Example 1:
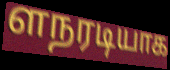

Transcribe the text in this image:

ளநரடியாக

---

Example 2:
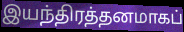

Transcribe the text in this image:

இயந்திரத்தனமாகப்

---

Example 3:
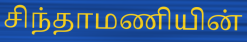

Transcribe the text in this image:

சிந்தாமணியின்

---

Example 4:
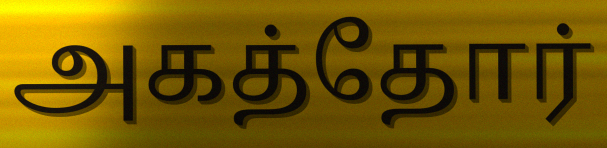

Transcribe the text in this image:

அகத்தோர்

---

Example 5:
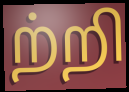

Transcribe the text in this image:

ற்றி